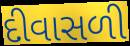
દીવાસળી